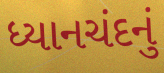
ધ્યાનચંદનું